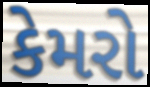
કેમરો